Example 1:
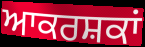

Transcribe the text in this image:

ਆਕਰਸ਼ਕਾਂ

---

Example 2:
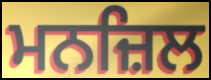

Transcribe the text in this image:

ਮਨਜ਼ਿਲ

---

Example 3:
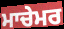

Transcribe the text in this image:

ਮਾਚੇਮਰ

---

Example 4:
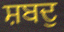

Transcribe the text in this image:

ਸ਼ਬਦੁ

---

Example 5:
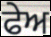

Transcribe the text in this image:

ਫੇਅ